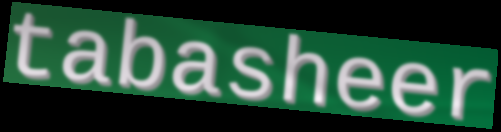
tabasheer